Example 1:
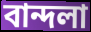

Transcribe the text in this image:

বান্দলা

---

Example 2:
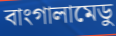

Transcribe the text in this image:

বাংগালামেডু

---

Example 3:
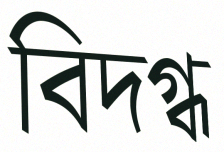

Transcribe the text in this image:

বিদগ্ধ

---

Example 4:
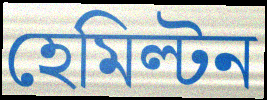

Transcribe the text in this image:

হেমিল্টন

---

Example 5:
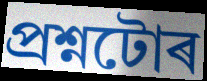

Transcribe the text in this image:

প্ৰশ্নটোৰ